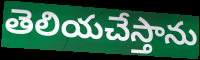
తెలియచేస్తాను